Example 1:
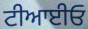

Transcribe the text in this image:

ਟੀਆਈਓ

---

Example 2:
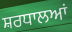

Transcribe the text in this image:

ਸ਼ਰਧਾਲਆਂ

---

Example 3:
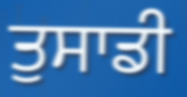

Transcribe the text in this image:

ਤੁਸਾਡੀ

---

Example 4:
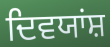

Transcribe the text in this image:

ਦਿਵਯਾਂਸ਼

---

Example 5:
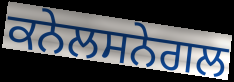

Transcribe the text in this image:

ਕਨੇਲਸਨੇਗਲ